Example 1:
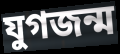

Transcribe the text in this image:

যুগজন্ম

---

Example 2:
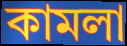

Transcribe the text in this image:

কামলা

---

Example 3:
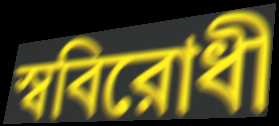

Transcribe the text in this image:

স্ববিরোধী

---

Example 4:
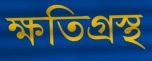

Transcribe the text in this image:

ক্ষতিগ্রস্থ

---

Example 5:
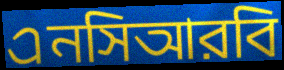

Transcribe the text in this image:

এনসিআরবি